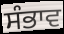
ਸੰਭਾਵ